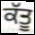
ਕੱਤੂ